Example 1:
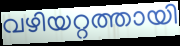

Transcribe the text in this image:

വഴിയറ്റത്തായി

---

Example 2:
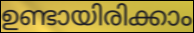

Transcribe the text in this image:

ഉണ്ടായിരിക്കാം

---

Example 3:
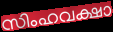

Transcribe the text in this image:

സിംഹവക്ഷാ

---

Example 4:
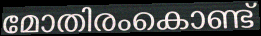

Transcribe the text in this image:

മോതിരംകൊണ്ട്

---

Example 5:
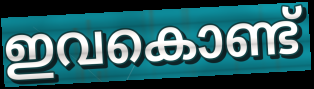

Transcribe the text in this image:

ഇവകൊണ്ട്